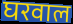
घरवाल